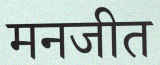
मनजीत